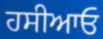
ਹਸੀਆਓ